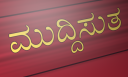
ಮುದ್ದಿಸುತ